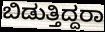
ಬಿಡುತ್ತಿದ್ದರಾ